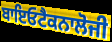
ਬਾਇਓਟੈਕਨਾਲੋਜੀ